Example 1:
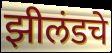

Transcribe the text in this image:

झीलंडचे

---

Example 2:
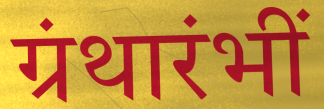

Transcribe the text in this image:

ग्रंथारंभीं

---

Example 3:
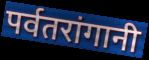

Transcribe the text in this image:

पर्वतरांगानी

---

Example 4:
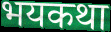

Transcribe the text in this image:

भयकथा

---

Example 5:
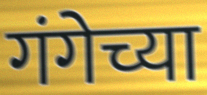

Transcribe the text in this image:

गंगेच्या